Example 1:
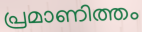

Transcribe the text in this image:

പ്രമാണിത്തം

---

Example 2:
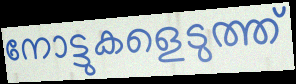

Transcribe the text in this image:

നോട്ടുകളെടുത്ത്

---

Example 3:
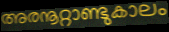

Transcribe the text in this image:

അരനൂറ്റാണ്ടുകാലം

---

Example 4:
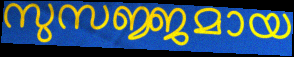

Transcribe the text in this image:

സുസജ്ജമായ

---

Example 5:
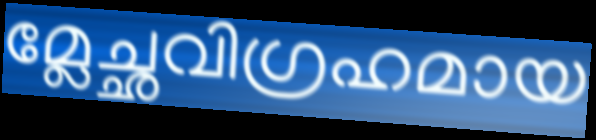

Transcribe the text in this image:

മ്ലേച്ഛവിഗ്രഹമായ